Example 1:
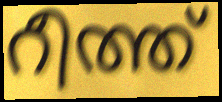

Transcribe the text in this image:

റീത്ത്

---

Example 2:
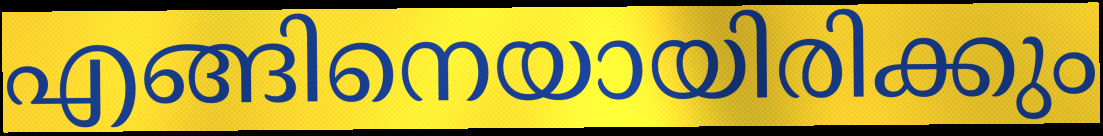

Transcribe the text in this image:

എങ്ങിനെയായിരിക്കും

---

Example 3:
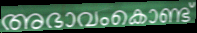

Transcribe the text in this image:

അഭാവംകൊണ്ട്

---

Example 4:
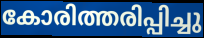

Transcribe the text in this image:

കോരിത്തരിപ്പിച്ചു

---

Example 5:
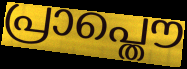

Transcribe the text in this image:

പ്രാപ്തൌ